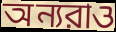
অন্যরাও